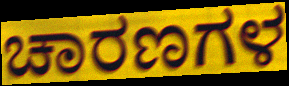
ಚಾರಣಗಳ